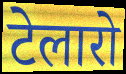
टेलारो